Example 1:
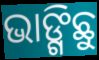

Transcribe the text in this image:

ଭାଙ୍ଗିଛୁ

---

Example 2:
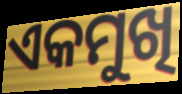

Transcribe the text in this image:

ଏକମୁଖି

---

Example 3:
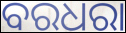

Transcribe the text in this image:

ବରଧରା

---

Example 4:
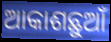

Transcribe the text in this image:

ଆକାଶଛୁଆଁ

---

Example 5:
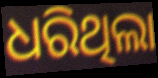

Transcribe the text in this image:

ଧରିଥିଲା